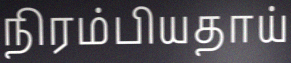
நிரம்பியதாய்